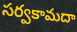
సర్వకామదా